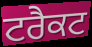
ਟਰੈਕਟ